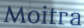
Moitra